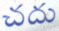
చదు